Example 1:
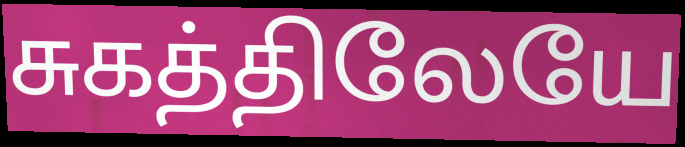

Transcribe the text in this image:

சுகத்திலேயே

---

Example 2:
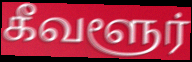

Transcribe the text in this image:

கீவளூர்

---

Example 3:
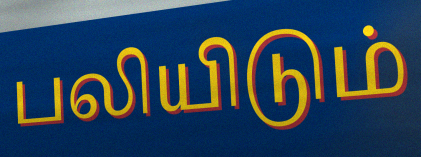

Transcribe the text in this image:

பலியிடும்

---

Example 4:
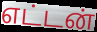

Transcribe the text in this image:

எட்டன்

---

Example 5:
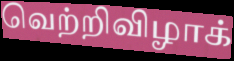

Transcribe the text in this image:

வெற்றிவிழாக்